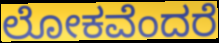
ಲೋಕವೆಂದರೆ